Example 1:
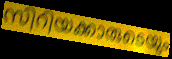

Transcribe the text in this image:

സിറിയക്കാരുടെയും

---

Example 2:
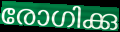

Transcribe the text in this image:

രോഗിക്കു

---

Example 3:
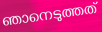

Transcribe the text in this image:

ഞാനെടുത്തത്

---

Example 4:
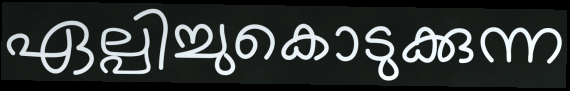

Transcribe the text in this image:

ഏല്പിച്ചുകൊടുക്കുന്ന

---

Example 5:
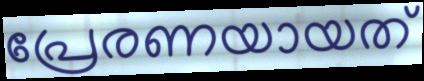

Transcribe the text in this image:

പ്രേരണയായത്